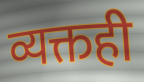
व्यक्तही